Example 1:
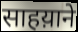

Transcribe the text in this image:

साहय़ाने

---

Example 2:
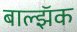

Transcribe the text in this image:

बाल्झॅक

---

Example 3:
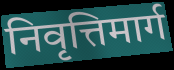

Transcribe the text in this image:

निवृत्तिमार्ग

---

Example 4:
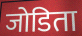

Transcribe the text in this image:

जोडिता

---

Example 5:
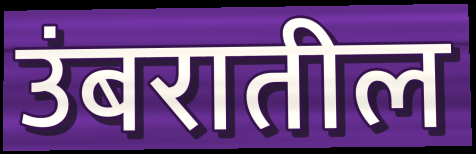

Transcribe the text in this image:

उंबरातील